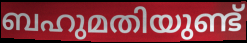
ബഹുമതിയുണ്ട്